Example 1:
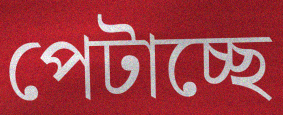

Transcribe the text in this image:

পেটাচ্ছে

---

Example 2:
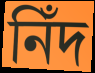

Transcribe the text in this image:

নিঁদ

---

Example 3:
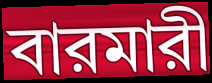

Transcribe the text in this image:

বারমারী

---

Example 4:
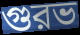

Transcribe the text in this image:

গুরভ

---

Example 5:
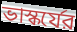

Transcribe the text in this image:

ভাস্কর্যের